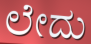
ಲೇದು